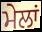
ਮੇਲਾਂ